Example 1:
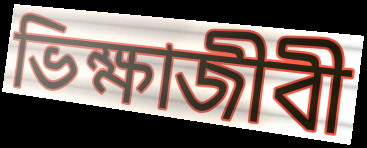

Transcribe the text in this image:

ভিক্ষাজীবী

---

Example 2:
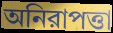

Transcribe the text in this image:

অনিরাপত্তা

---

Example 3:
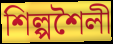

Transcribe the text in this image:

শিল্পশৈলী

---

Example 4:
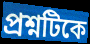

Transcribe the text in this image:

প্রশ্নটিকে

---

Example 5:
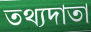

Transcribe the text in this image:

তথ্যদাতা